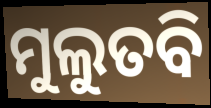
ମୁଲୁତବି